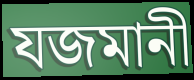
যজমানী